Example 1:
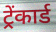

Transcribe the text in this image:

ट्रेंकार्ड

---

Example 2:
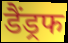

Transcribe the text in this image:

डैंड्रफ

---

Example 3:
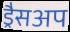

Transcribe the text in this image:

ड्रैसअप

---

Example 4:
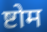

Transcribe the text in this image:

ष्टोम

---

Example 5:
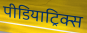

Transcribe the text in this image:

पीडियाट्रिक्स